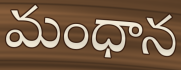
మంధాన